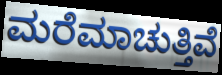
ಮರೆಮಾಚುತ್ತಿವೆ